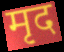
मृद